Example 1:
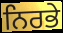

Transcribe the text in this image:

ਨਿਰਭੇ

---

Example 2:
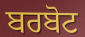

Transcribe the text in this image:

ਬਰਬੋਟ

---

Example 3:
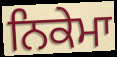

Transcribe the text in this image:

ਨਿਕੇਮਾ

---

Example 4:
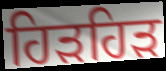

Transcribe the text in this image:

ਹਿੜਹਿੜ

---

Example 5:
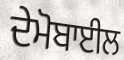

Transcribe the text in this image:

ਦੇਮੋਬਾਈਲ